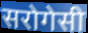
सरोगेसी